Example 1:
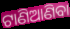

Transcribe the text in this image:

ଟାଣିଆଣିବା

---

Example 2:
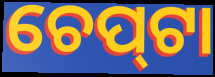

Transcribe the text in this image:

ଚେପ୍‌ଟା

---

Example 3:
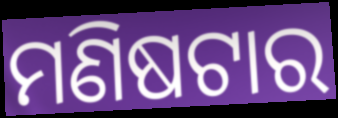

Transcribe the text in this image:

ମଣିଷଟାର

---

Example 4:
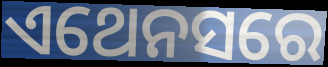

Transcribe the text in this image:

ଏଥେନସରେ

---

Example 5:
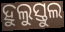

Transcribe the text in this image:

ହୁଲୁସ୍ତୁଲ